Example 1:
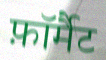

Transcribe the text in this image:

फ़ॉर्मैट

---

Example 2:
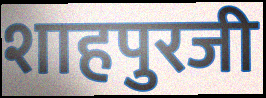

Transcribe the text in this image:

शाहपुरजी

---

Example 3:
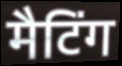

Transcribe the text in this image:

मैटिंग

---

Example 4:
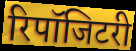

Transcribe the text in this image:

रिपॉजिटरी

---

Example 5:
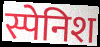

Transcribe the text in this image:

स्पेनिश